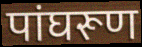
पांघरूण